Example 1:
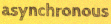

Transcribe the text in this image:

asynchronous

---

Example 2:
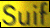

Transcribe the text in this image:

Suif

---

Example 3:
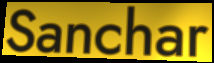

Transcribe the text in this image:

Sanchar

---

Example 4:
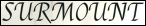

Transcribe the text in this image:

SURMOUNT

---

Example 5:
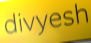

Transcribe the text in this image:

divyesh